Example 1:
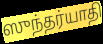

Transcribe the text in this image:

ஸுந்தர்யாதி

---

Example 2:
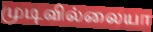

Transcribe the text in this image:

முடிவில்லையா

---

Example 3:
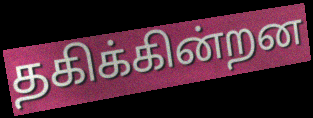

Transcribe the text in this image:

தகிக்கின்றன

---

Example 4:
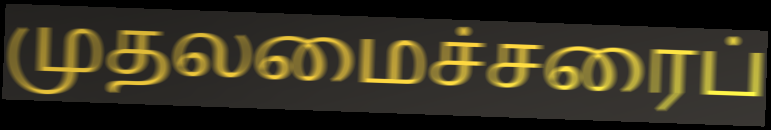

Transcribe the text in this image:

முதலமைச்சரைப்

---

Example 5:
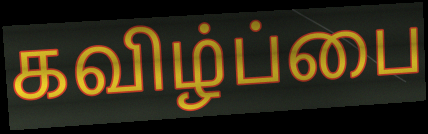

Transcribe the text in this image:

கவிழ்ப்பை